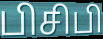
பிசிபி